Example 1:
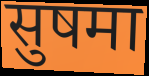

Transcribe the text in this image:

सुषमा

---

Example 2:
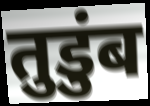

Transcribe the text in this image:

तुडुंब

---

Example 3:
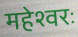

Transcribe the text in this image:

महेश्वरः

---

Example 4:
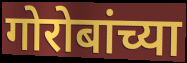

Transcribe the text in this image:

गोरोबांच्या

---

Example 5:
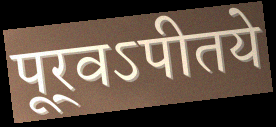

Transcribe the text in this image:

पूर्वऽपीतये